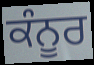
ਕੰਨੂਰ